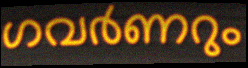
ഗവർണറും